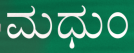
ಮಧುಂ